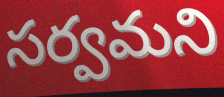
సర్వమని